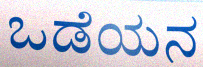
ಒಡೆಯನ